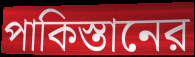
পাকিস্তানের